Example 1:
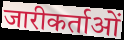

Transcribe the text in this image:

जारीकर्ताओं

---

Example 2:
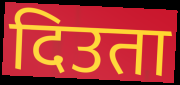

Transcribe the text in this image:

दिउता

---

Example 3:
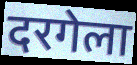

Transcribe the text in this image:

दरगेला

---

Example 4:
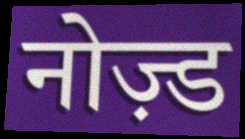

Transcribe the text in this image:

नोज़्ड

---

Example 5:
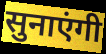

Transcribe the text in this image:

सुनाएंगी